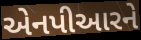
એનપીઆરને